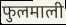
फुलमाली